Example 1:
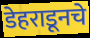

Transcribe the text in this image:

डेहराडूनचे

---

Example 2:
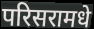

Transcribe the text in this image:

परिसरामधे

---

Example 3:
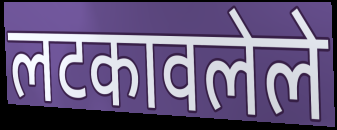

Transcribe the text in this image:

लटकावलेले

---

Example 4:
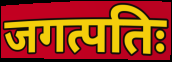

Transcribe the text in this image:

जगत्पतिः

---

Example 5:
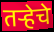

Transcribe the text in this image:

तर्‍हेचे